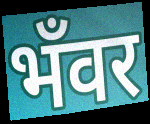
भँवर